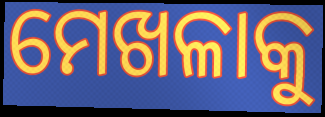
ମେଖଳାକୁ